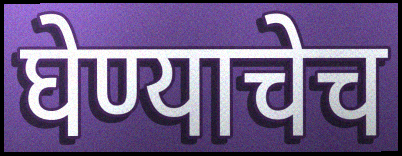
घेण्याचेच